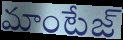
మాంటేజ్